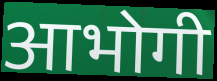
आभोगी